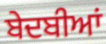
ਬੇਦਬੀਆਂ